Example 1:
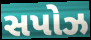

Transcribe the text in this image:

સપોઝ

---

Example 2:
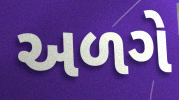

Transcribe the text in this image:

અળગે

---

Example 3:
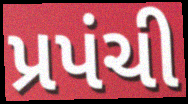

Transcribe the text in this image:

પ્રપંચી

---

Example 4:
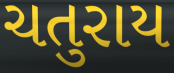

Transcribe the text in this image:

ચતુરાય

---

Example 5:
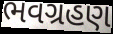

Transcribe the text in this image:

ભવગ્રહણ